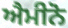
ਐਮੀਨੋ